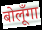
बोलूँगा